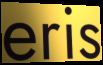
eris